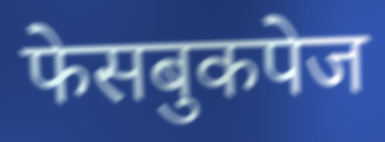
फेसबुकपेज